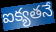
ఐక్యతనే